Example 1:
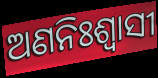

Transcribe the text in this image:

ଅଣନିଃଶ୍ଵାସୀ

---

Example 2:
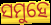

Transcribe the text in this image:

ସମୁହେ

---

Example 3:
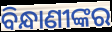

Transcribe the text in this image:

ବିନ୍ଧାଣୀଙ୍କର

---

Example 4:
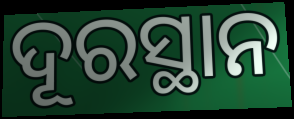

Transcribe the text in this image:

ଦୂରସ୍ଥାନ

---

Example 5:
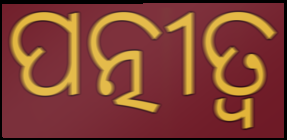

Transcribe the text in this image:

ପତ୍ନୀତ୍ୱ